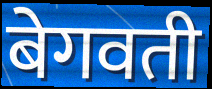
बेगवती